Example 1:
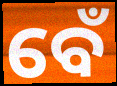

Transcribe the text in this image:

ବେଁ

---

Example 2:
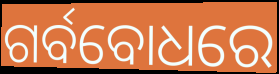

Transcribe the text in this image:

ଗର୍ବବୋଧରେ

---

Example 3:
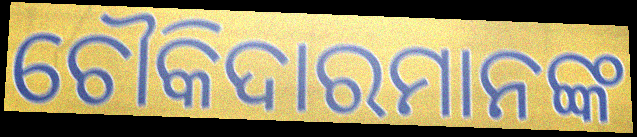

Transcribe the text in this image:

ଚୌକିଦାରମାନଙ୍କ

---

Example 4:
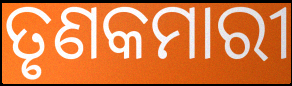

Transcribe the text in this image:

ତୃଣକମାରୀ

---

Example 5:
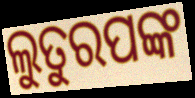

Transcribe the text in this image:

ଲୁତୁରପଙ୍କ